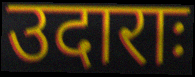
उदाराः